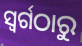
ସ୍ଵର୍ଗଠାରୁ